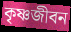
কৃষ্ণজীবন